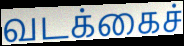
வடக்கைச்